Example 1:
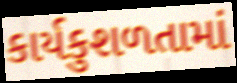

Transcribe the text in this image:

કાર્યકુશળતામાં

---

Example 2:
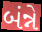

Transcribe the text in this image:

બંન્ને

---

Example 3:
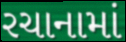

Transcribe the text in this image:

રચાનામાં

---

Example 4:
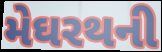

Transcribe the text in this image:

મેઘરથની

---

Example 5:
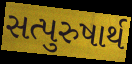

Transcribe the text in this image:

સત્પુરુષાર્થ